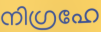
നിഗ്രഹേ